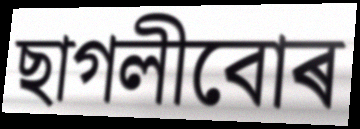
ছাগলীবোৰ